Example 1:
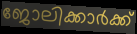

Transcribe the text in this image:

ജോലിക്കാർക്ക്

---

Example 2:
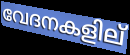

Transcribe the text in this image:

വേദനകളില്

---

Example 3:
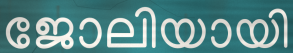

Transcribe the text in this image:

ജോലിയായി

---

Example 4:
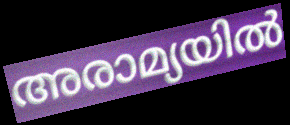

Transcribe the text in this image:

അരാമ്യയിൽ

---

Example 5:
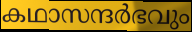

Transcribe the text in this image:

കഥാസന്ദർഭവും